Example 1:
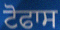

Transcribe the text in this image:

ਟੋਫਾਸ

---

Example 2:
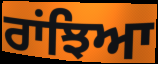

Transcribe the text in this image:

ਰਾਂਝਿਆ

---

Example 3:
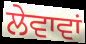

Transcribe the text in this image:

ਲੇਵਾਵਾਂ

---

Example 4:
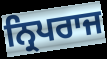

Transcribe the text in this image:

ਨ੍ਰਿਪਰਾਜ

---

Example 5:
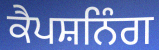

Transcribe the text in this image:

ਕੈਪਸ਼ਨਿੰਗ